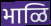
भाळि